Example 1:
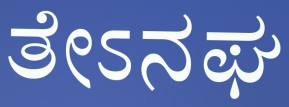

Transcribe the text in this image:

ತೇಽನಘ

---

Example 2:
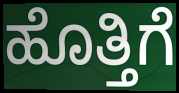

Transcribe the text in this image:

ಹೊತ್ತಿಗೆ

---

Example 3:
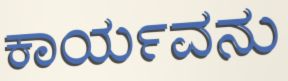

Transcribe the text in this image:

ಕಾರ್ಯವನು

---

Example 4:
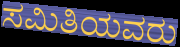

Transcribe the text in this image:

ಸಮಿತಿಯವರು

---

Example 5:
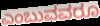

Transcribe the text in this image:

ಎಂಬುವವರೂ